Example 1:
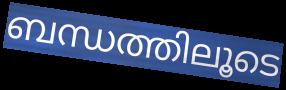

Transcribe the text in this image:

ബന്ധത്തിലൂടെ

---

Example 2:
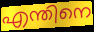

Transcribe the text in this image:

എന്തിനെ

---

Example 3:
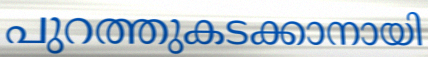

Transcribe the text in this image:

പുറത്തുകടക്കാനായി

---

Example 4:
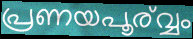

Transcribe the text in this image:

പ്രണയപൂര്വ്വം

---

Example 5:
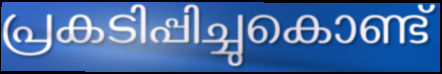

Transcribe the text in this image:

പ്രകടിപ്പിച്ചുകൊണ്ട്